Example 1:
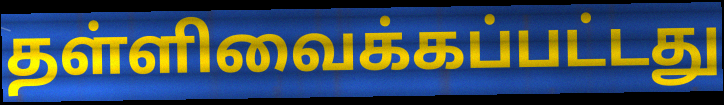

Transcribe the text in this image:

தள்ளிவைக்கப்பட்டது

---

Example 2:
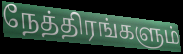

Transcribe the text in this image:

நேத்திரங்களும்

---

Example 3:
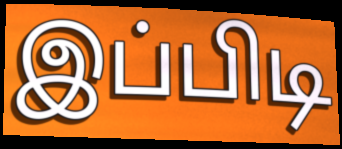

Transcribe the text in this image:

இப்பிடி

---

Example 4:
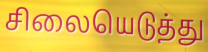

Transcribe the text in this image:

சிலையெடுத்து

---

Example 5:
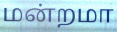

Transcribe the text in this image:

மன்றமா